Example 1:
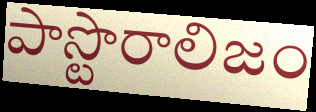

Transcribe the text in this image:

పాస్టొరాలిజం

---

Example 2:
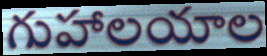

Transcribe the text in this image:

గుహాలయాల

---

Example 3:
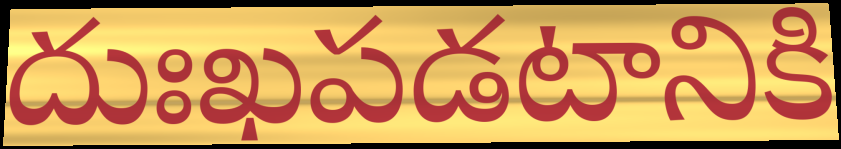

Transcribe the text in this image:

దుఃఖపడటానికి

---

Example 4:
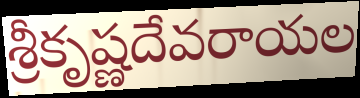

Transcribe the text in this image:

శ్రీకృష్ణదేవరాయల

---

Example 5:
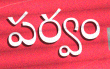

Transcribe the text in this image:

పర్వం